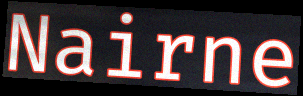
Nairne